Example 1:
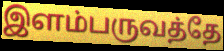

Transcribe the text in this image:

இளம்பருவத்தே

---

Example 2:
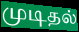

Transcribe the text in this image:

முடிதல்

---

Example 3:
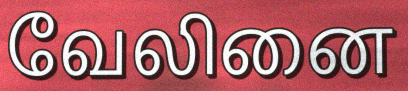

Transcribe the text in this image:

வேலினை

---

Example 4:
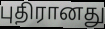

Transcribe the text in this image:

புதிரானது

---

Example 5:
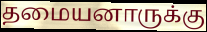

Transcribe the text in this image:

தமையனாருக்கு